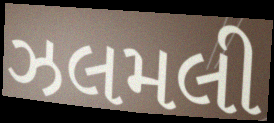
ઝલમલી